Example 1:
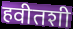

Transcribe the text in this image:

हवीतशी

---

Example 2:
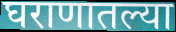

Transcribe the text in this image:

घराणातल्या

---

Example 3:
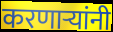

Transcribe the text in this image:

करणाऱ्यांनी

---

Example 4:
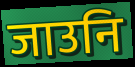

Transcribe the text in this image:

जाउनि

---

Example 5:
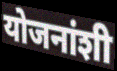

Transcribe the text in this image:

योजनांशी